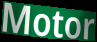
Motor